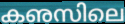
കഌസിലെ